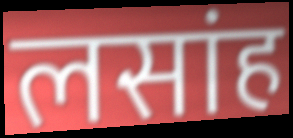
लसांह